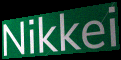
Nikkei